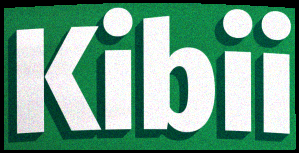
Kibii